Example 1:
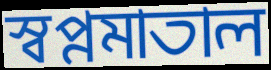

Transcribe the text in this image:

স্বপ্নমাতাল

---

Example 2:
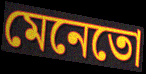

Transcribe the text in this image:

মেনেতো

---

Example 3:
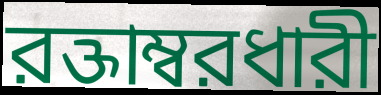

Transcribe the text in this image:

রক্তাম্বরধারী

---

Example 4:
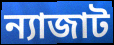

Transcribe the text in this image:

ন্যাজাট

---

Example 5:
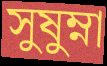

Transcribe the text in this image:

সুষুম্না